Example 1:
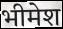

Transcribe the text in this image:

भीमेश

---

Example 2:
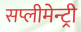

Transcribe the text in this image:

सप्लीमेन्ट्री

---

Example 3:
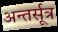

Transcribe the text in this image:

अन्तर्सूत्र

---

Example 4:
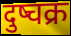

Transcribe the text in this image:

दुष्चक्र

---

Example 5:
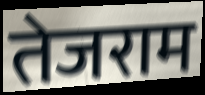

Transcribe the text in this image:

तेजराम